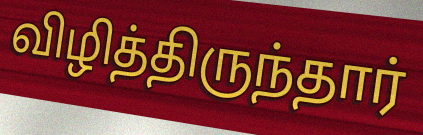
விழித்திருந்தார்